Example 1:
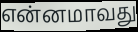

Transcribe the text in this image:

என்னமாவது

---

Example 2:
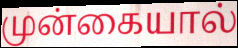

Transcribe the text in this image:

முன்கையால்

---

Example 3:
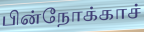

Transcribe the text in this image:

பின்நோக்காச்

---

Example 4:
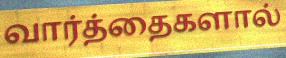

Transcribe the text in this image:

வார்த்தைகளால்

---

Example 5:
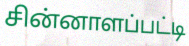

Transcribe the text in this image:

சின்னாளப்பட்டி